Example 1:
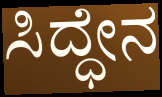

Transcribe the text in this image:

ಸಿದ್ಧೇನ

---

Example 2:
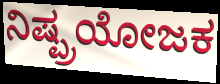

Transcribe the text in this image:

ನಿಷ್ಪ್ರಯೋಜಕ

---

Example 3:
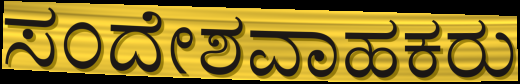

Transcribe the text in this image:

ಸಂದೇಶವಾಹಕರು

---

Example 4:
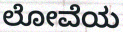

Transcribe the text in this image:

ಲೋವೆಯ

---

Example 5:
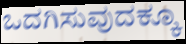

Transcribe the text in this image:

ಒದಗಿಸುವುದಕ್ಕೂ